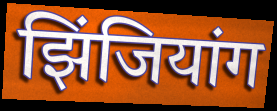
झिंजियांग